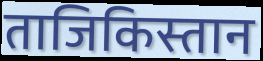
ताजिकिस्तान